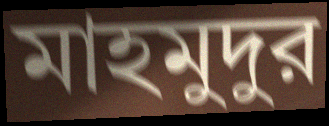
মাহমুদুর